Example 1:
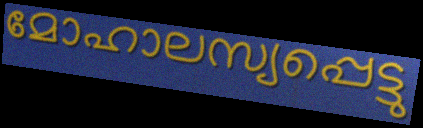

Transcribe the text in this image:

മോഹാലസ്യപ്പെട്ടു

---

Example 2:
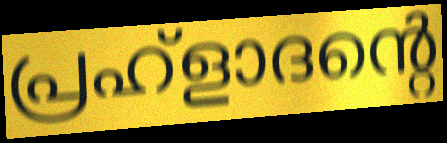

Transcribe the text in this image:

പ്രഹ്ളാദന്റെ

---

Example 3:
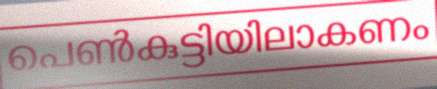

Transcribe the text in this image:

പെൺകുട്ടിയിലാകണം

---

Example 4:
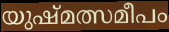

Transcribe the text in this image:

യുഷ്മത്സമീപം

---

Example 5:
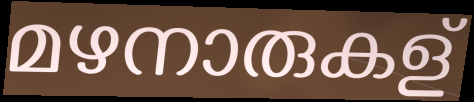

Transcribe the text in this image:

മഴനാരുകള്